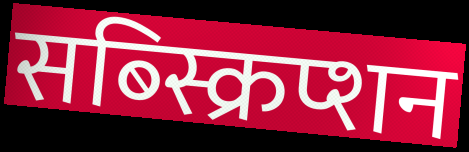
सब्स्क्रिप्शन